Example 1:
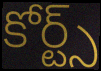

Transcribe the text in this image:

కోర్ట్స్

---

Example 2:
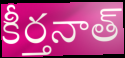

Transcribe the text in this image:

కీర్తనాత్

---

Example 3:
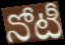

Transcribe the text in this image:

నోటీ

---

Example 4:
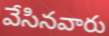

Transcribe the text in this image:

వేసినవారు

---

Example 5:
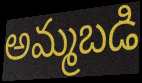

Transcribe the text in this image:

అమ్మబడి